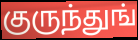
குருந்துங்